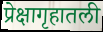
प्रेक्षागृहातली